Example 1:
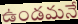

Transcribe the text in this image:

ఉండమనే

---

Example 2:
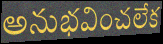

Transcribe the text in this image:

అనుభవించలేక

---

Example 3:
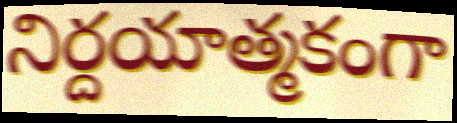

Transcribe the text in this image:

నిర్దయాత్మకంగా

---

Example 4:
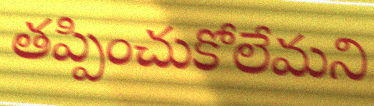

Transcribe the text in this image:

తప్పించుకోలేమని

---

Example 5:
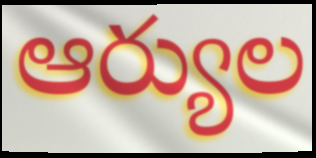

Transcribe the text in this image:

ఆర్యుల